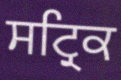
ਸਟ੍ਰਿਕ